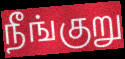
நீங்குறு